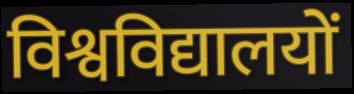
विश्वविद्यालयों